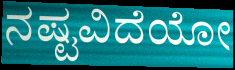
ನಷ್ಟವಿದೆಯೋ